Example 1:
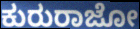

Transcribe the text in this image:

ಕುರುರಾಜೋ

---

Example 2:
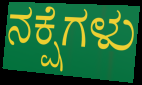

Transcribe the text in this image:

ನಕ್ಷೆಗಳು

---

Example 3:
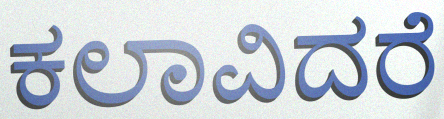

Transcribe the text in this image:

ಕಲಾವಿದರೆ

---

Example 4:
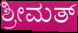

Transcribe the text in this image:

ಶ್ರೀಮತ್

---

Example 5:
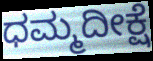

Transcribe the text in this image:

ಧಮ್ಮದೀಕ್ಷೆ